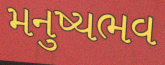
મનુષ્યભવ